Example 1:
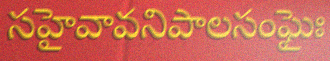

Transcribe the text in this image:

సహైవావనిపాలసంఘైః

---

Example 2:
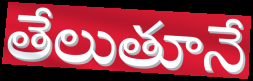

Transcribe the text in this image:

తేలుతూనే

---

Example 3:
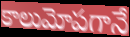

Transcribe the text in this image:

కాలుమోపగానే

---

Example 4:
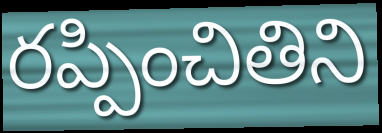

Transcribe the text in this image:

రప్పించితిని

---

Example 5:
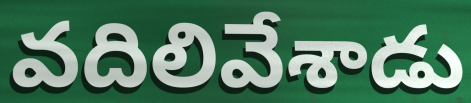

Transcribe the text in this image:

వదిలివేశాడు